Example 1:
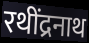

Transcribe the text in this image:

रथींद्रनाथ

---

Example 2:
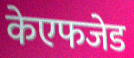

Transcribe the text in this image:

केएफजेड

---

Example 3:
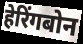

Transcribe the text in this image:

हेरिंगबोन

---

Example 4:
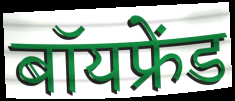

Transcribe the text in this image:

बॉयफ्रेंड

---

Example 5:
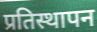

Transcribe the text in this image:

प्रतिस्थापन